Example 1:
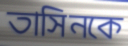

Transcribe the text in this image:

তাসিনকে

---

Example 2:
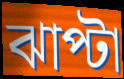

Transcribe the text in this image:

ঝাপ্টা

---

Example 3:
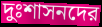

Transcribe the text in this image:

দুঃশাসনদের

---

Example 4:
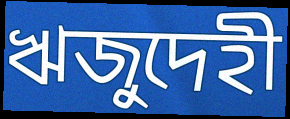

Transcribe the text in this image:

ঋজুদেহী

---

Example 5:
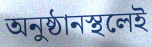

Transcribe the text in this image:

অনুষ্ঠানস্থলেই